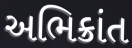
અભિક્રાંત